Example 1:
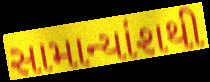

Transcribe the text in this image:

સામાન્યાંશથી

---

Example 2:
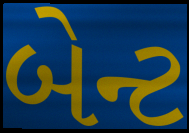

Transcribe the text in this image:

બેન્ટ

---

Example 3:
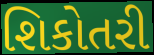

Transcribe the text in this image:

શિકોતરી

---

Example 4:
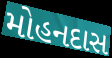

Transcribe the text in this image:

મોહનદાસ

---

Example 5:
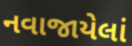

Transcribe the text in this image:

નવાજાયેલાં